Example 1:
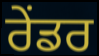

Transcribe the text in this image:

ਰੇੰਡਰ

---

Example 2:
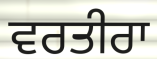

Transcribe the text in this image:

ਵਰਤੀਰਾ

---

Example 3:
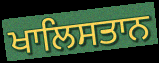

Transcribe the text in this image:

ਖਾਲਿਸਤਾਨ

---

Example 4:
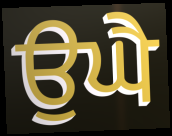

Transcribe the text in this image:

ਉਘੈ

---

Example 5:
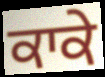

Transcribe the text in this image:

ਕਾਕੇ